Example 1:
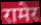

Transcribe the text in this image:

रामेर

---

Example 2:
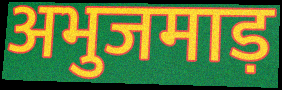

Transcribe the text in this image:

अभुजमाड़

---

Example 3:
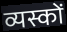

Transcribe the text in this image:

व्यस्कों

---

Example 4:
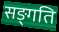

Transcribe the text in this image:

सङ्गति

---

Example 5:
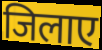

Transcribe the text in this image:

जिलाए